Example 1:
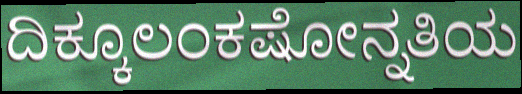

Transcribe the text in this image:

ದಿಕ್ಕೂಲಂಕಷೋನ್ನತಿಯ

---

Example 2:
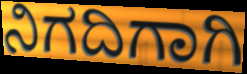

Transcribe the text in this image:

ನಿಗದಿಗಾಗಿ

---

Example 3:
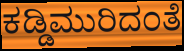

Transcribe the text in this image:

ಕಡ್ಡಿಮುರಿದಂತೆ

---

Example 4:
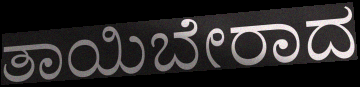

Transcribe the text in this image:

ತಾಯಿಬೇರಾದ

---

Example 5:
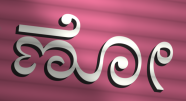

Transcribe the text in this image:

ಣೋ